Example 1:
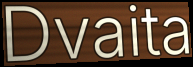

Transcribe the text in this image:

Dvaita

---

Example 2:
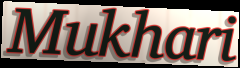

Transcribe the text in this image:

Mukhari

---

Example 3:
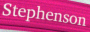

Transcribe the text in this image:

Stephenson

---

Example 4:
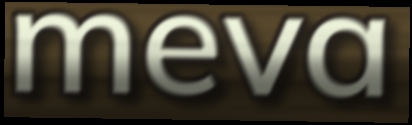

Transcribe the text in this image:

meva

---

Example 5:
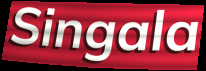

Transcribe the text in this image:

Singala